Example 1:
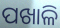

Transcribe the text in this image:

ପଖାଳି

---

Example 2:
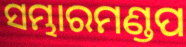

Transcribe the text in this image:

ସମ୍ଭାରମଣ୍ଡପ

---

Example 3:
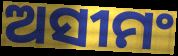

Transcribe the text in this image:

ଅସୀମଂ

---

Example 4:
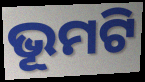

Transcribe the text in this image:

ଭୂମଟି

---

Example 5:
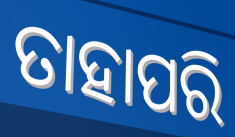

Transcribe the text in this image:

ତାହାପରି